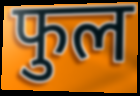
फुल